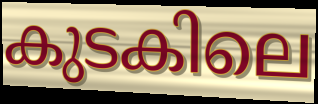
കുടകിലെ